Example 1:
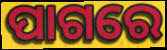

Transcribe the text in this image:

ପାଗରେ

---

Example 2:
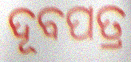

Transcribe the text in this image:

ଦୂବପତ୍ର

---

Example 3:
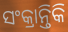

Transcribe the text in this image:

ସଂକ୍ରାନ୍ତିକି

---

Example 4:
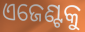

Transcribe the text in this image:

ଏଜେଣ୍ଟକୁ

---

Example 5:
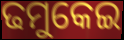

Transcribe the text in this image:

ଢମୁକେଇ